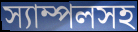
স্যাম্পলসহ